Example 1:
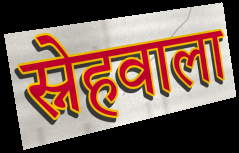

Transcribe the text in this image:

स्नेहवाला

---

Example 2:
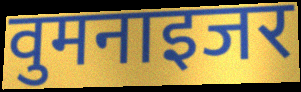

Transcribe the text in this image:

वुमनाइजर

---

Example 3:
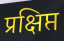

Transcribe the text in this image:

प्रक्षिप्त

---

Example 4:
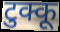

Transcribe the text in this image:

टुक्कू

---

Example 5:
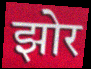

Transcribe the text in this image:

झोर